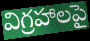
విగ్రహాలపై